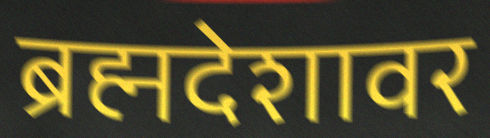
ब्रह्मदेशावर